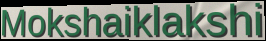
Mokshaiklakshi